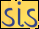
ડાંડ